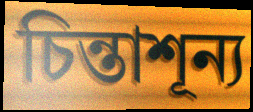
চিন্তাশূন্য